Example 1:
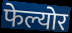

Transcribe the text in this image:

फेल्योर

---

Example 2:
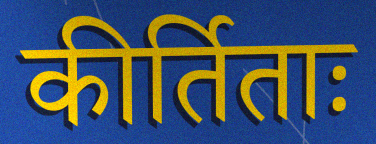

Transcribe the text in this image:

कीर्तिताः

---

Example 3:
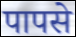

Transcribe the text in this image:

पापसे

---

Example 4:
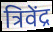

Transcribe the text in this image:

त्रिवेंद्र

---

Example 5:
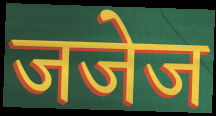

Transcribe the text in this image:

जजेज